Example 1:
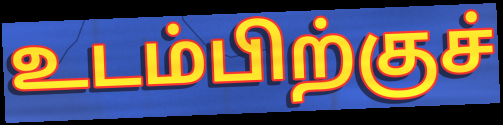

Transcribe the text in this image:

உடம்பிற்குச்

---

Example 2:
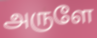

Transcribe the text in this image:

அருளே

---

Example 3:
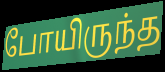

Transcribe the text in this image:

போயிருந்த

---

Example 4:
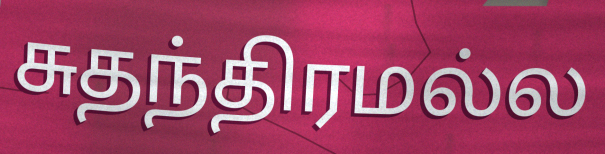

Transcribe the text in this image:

சுதந்திரமல்ல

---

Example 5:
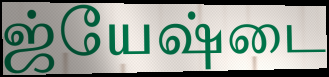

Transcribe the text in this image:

ஜ்யேஷ்டை